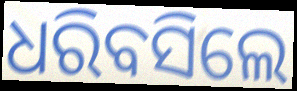
ଧରିବସିଲେ